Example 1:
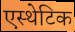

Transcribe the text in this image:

एस्थेटिक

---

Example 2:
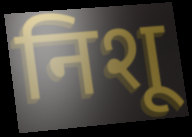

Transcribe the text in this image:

निशू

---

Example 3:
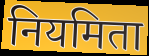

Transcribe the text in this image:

नियमिता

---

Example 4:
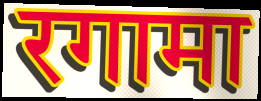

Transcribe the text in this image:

रगामा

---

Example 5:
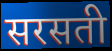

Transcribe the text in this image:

सरसती